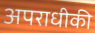
अपराधीकी